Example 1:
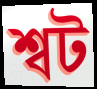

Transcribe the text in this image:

শ্বট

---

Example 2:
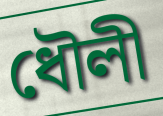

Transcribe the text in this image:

ধৌলী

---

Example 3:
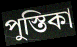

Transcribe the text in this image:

পুস্তিকা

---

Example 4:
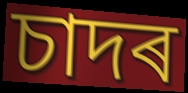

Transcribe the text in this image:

চাদৰ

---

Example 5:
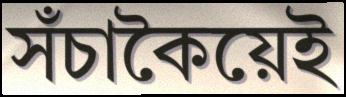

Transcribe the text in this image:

সঁচাকৈয়েই